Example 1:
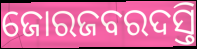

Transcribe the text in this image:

ଜୋରଜବରଦସ୍ତି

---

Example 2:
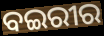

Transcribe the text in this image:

ବଇରୀର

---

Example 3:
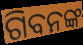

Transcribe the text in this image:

ଗିବନଙ୍କ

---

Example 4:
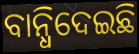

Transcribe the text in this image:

ବାନ୍ଧିଦେଇଛି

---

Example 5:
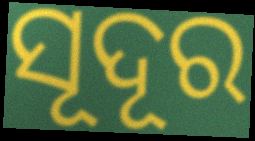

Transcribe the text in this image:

ସୂଦୂର